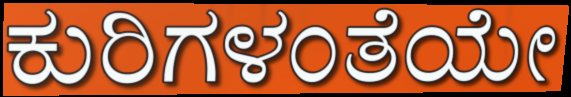
ಕುರಿಗಳಂತೆಯೇ